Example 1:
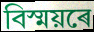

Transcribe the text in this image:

বিস্ময়ৰে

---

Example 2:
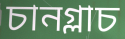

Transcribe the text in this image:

চানগ্লাচ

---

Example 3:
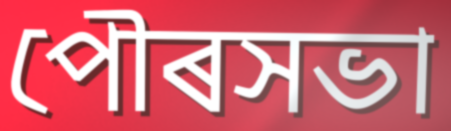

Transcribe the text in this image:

পৌৰসভা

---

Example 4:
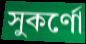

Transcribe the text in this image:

সুকৰ্ণো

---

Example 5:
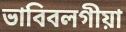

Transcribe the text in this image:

ভাবিবলগীয়া